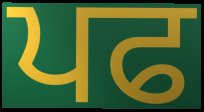
ਪਫ